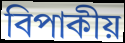
বিপাকীয়